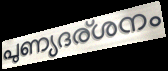
പുണ്യദര്ശനം